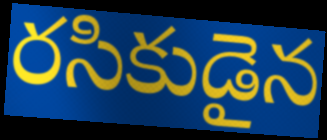
రసికుడైన